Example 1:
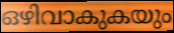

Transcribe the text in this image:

ഒഴിവാകുകയും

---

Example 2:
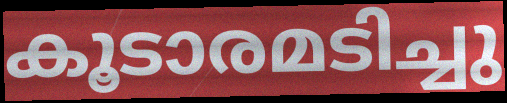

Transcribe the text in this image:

കൂടാരമടിച്ചു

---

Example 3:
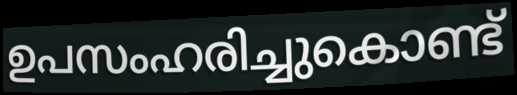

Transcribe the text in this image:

ഉപസംഹരിച്ചുകൊണ്ട്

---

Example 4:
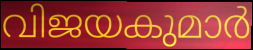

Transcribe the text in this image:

വിജയകുമാർ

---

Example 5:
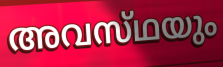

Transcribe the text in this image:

അവസ്‌ഥയും